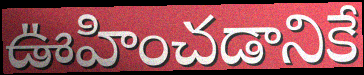
ఊహించడానికే